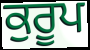
ਕੁਰੂਪ